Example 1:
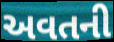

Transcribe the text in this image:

અવતની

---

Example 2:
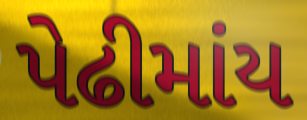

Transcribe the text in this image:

પેઢીમાંય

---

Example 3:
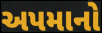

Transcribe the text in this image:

અપમાનો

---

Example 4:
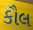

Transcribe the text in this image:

કૌલ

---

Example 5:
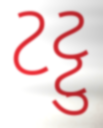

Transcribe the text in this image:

ટટ્ટુ